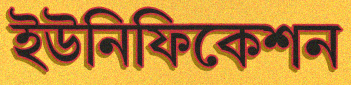
ইউনিফিকেশন